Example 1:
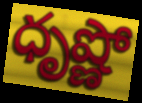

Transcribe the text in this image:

ధృష్ణో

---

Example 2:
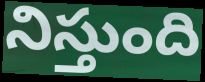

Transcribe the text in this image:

నిస్తుంది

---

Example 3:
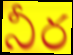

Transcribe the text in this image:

నీర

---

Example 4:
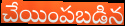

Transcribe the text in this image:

చేయింపబడిన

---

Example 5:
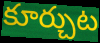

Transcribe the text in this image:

కూర్చుట